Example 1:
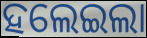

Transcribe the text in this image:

ହଲେଇଲା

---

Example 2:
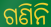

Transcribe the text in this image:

ଗଣିନି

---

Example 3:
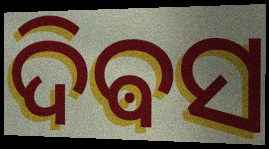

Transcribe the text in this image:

ଦିଵସ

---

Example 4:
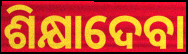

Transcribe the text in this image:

ଶିକ୍ଷାଦେବା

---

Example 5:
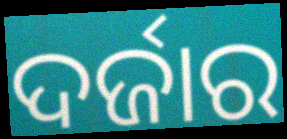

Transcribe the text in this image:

ଦର୍ଜାର